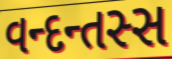
વન્દન્તસ્સ